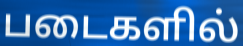
படைகளில்